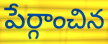
పేర్గాంచిన